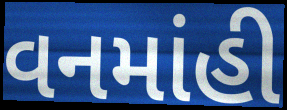
વનમાંહી